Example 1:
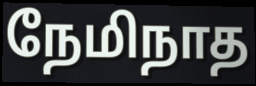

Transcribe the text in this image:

நேமிநாத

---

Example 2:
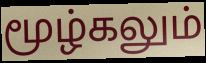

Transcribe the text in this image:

மூழ்கலும்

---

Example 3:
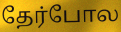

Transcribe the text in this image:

தேர்போல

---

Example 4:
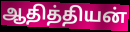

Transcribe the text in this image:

ஆதித்தியன்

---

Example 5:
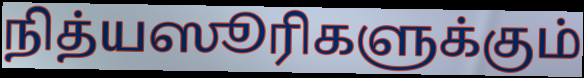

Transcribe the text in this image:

நித்யஸூரிகளுக்கும்